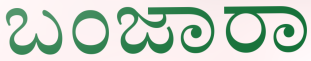
ಬಂಜಾರಾ